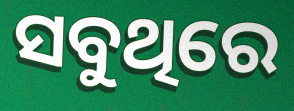
ସବୁଥିରେ